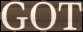
GOT